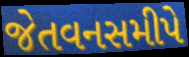
જેતવનસમીપે